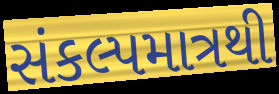
સંકલ્પમાત્રથી